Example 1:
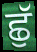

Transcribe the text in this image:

ਛੁੱ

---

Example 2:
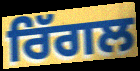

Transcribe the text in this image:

ਰਿੱਗਲ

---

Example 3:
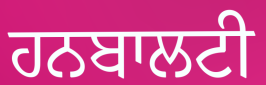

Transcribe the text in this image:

ਹਨਬਾਲਟੀ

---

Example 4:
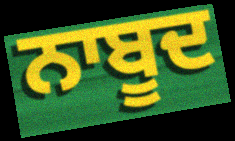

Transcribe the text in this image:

ਨਾਬੂਦ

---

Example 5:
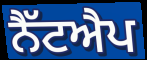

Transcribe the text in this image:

ਨੈੱਟਐਪ